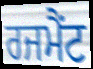
ਰਜਮੈਂਟ